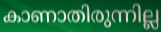
കാണാതിരുന്നില്ല